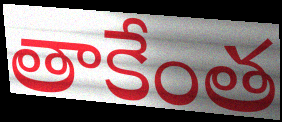
తాకేంత